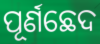
ପୂର୍ଣଛେଦ